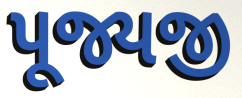
પૂજ્યજી